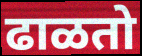
ढाळतो